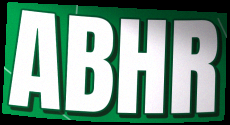
ABHR